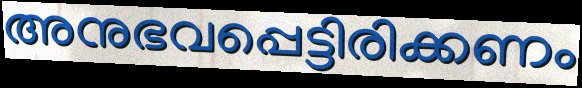
അനുഭവപ്പെട്ടിരിക്കണം